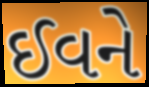
ઈવને